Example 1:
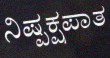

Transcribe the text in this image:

ನಿಷ್ಪಕ್ಷಪಾತ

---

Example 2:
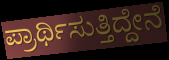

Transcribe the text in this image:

ಪ್ರಾರ್ಥಿಸುತ್ತಿದ್ದೇನೆ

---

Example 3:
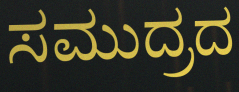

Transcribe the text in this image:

ಸಮುದ್ರದ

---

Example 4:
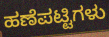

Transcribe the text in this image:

ಹಣೆಪಟ್ಟಿಗಳು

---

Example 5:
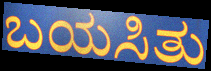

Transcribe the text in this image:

ಬಯಸಿತು